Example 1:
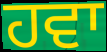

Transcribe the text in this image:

ਹਵਾ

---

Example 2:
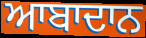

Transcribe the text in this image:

ਆਬਾਦਾਨ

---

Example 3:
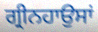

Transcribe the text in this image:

ਗ੍ਰੀਨਹਾਉਸਾਂ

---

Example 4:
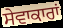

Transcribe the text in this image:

ਸੇਵਾਕਾਰਾਂ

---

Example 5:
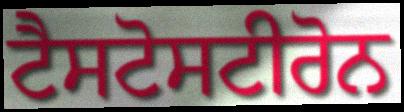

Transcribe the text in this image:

ਟੈਸਟੋਸਟੀਰੋਨ